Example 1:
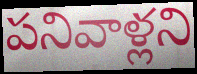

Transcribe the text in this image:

పనివాళ్లని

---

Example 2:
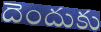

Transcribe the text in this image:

దెందుకు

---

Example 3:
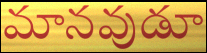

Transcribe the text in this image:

మానవుడూ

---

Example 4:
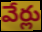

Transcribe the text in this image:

వేర్లు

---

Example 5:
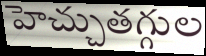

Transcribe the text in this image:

హెచ్చుతగ్గుల